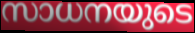
സാധനയുടെ